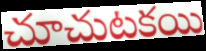
చూచుటకయి